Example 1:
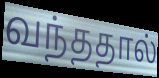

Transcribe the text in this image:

வந்ததால்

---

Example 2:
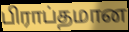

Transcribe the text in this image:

பிராப்தமான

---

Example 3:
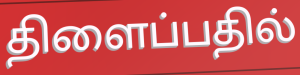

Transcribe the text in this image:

திளைப்பதில்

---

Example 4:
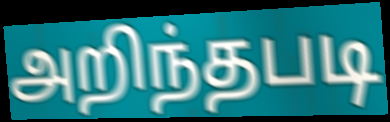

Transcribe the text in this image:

அறிந்தபடி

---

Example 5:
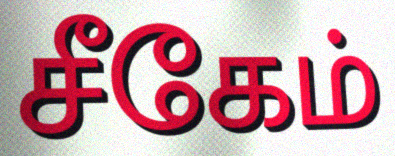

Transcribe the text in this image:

சீகேம்